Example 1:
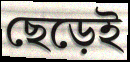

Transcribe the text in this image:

ছেড়েই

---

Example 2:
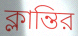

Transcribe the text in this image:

ক্লান্তির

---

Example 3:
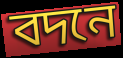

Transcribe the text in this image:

বদনে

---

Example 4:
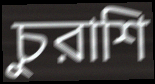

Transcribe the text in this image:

চুরাশি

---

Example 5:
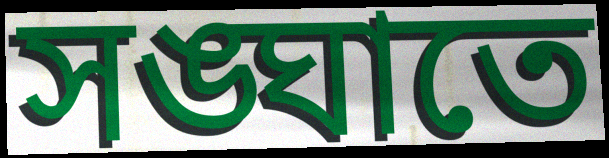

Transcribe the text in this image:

সঙ্ঘাতে